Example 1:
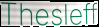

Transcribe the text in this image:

Thesleff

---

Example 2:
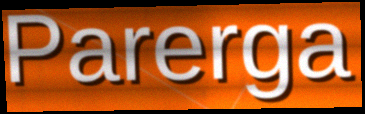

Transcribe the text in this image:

Parerga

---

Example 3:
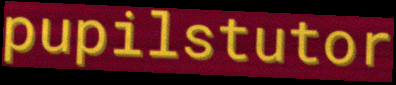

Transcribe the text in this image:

pupilstutor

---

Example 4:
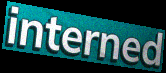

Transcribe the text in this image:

interned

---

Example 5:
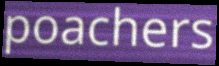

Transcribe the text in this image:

poachers